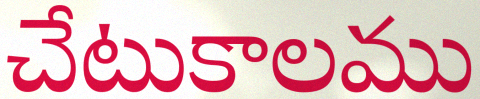
చేటుకాలము